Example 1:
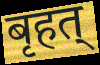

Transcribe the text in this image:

बृहत्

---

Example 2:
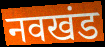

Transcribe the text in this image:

नवखंड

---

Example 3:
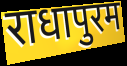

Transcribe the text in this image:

राधापुरम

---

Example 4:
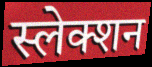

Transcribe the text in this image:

स्लेक्शन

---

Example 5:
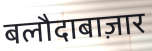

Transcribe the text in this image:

बलौदाबाज़ार